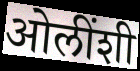
ओलींशी